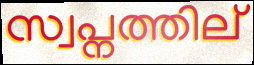
സ്വപ്നത്തില്